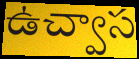
ఉచ్వాస